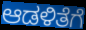
ಆಡಳಿತೆಗೆ